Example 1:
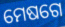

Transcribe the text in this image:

ମେଷଗେ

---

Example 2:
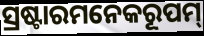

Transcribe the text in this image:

ସ୍ରଷ୍ଟାରମନେକରୂପମ୍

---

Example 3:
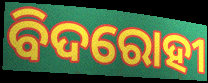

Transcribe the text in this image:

ବିଦରୋହୀ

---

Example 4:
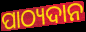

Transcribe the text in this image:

ପାଠ୍ୟଦାନ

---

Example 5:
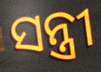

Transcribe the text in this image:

ସନ୍ତ୍ରୀ